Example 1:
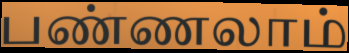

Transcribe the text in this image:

பண்ணலாம்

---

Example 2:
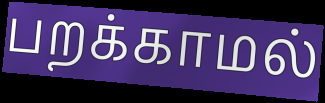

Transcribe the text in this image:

பறக்காமல்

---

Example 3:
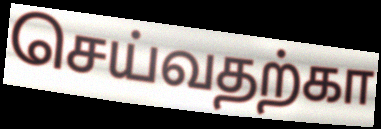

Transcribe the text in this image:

செய்வதற்கா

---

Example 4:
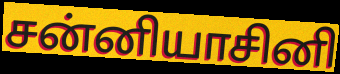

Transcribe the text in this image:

சன்னியாசினி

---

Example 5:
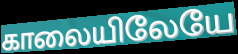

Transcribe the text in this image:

காலையிலேயே